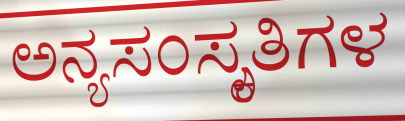
ಅನ್ಯಸಂಸ್ಕೃತಿಗಳ